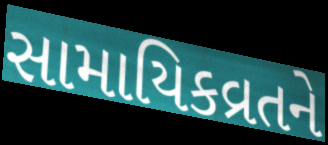
સામાયિકવ્રતને